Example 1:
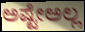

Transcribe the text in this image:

ಅಷ್ಟೇಅಲ್ಲ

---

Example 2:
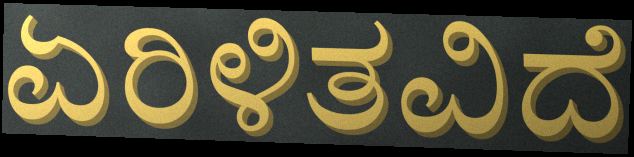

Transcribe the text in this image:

ಏರಿಳಿತವಿದೆ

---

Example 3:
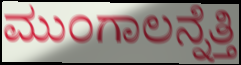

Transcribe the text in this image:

ಮುಂಗಾಲನ್ನೆತ್ತಿ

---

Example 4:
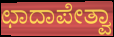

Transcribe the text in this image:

ಛಾದಾಪೇತ್ವಾ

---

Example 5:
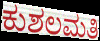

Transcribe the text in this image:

ಕುಶಲಮತಿ